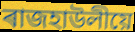
ৰাজহাউলীয়ে